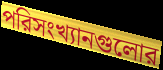
পরিসংখ্যানগুলোর